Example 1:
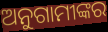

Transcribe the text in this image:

ଅନୁଗାମୀଙ୍କର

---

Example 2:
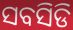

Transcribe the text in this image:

ସବସିଡି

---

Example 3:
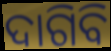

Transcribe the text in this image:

ଦାଗିବି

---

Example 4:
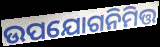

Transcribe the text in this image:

ଉପଯୋଗନିମିତ୍ତ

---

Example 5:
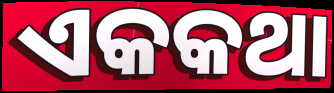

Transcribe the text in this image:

ଏକକଥା